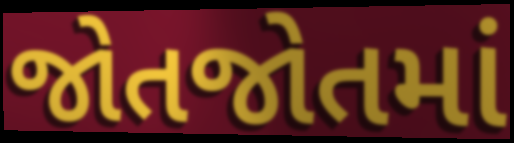
જોતજોતમાં